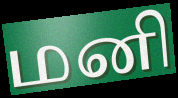
மனி